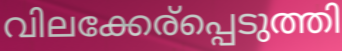
വിലക്കേര്പ്പെടുത്തി